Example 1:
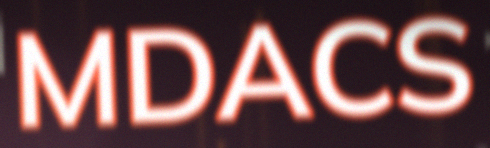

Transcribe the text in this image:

MDACS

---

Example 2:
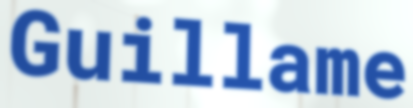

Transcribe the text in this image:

Guillame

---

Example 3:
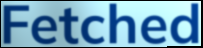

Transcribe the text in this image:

Fetched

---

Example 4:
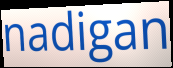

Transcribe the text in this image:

nadigan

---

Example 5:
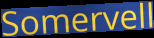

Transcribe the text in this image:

Somervell